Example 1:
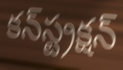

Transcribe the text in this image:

కన్‍స్ట్రక్షన్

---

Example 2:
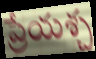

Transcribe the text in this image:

ప్రేయశ్చ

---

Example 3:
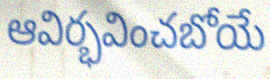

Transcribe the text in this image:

ఆవిర్భవించబోయే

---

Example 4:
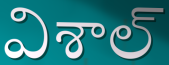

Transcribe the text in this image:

విశాల్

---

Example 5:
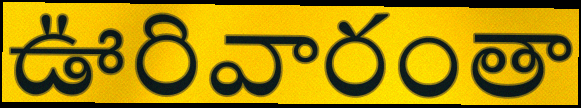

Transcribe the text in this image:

ఊరివారంతా